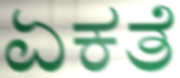
ಏಕತೆ